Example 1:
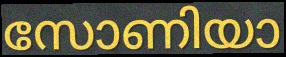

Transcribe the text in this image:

സോണിയാ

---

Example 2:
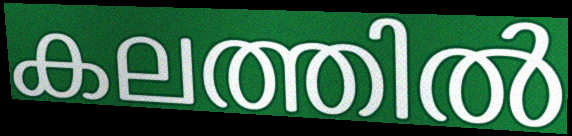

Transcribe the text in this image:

കലത്തിൽ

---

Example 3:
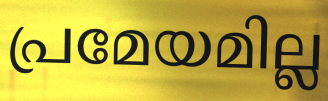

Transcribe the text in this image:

പ്രമേയമില്ല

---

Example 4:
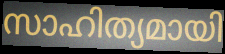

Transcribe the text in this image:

സാഹിത്യമായി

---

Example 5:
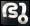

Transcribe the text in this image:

ഭു